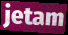
jetam